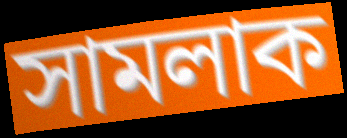
সামলাক